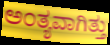
ಅಂತ್ಯವಾಗಿತ್ತು